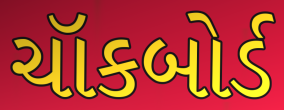
ચૉકબોર્ડ